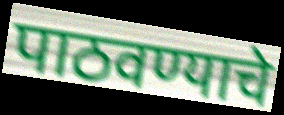
पाठवण्याचे